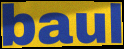
baul